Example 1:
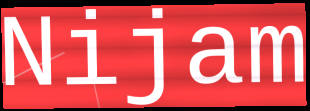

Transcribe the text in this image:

Nijam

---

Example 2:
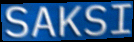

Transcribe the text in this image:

SAKSI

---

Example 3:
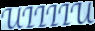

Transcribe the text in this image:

UIIIIU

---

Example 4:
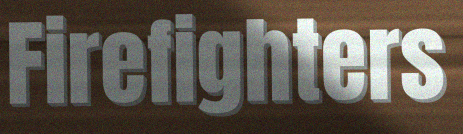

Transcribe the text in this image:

Firefighters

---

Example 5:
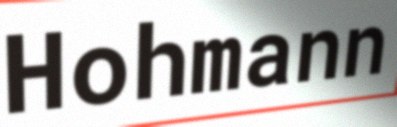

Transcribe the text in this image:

Hohmann